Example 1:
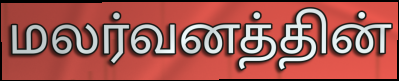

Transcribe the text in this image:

மலர்வனத்தின்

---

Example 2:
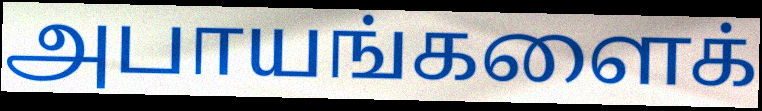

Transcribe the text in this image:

அபாயங்களைக்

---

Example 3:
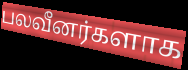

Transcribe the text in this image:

பலவீனர்களாக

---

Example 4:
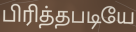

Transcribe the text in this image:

பிரித்தபடியே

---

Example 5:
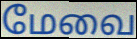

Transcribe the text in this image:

மேவை